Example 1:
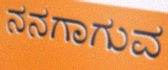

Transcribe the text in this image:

ನನಗಾಗುವ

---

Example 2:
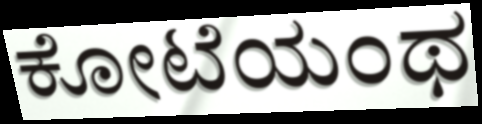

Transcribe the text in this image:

ಕೋಟೆಯಂಥ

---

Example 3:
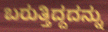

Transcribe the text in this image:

ಬರುತ್ತಿದ್ದದನ್ನು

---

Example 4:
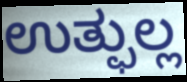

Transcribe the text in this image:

ಉತ್ಫುಲ್ಲ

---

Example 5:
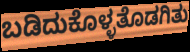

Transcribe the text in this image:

ಬಡಿದುಕೊಳ್ಳತೊಡಗಿತು